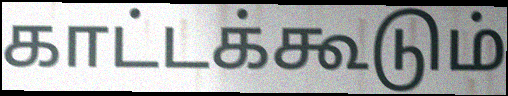
காட்டக்கூடும்